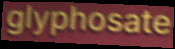
glyphosate